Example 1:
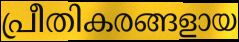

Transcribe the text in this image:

പ്രീതികരങ്ങളായ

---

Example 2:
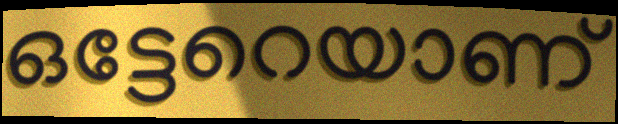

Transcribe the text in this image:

ഒട്ടേറെയാണ്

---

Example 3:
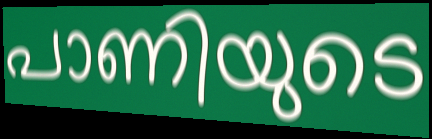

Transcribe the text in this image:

പാണിയുടെ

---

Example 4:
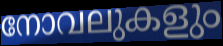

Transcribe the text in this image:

നോവലുകളും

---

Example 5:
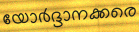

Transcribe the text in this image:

യോർദ്ദാനക്കരെ